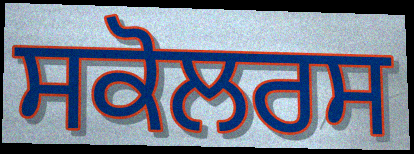
ਸਕੋਲਰਸ